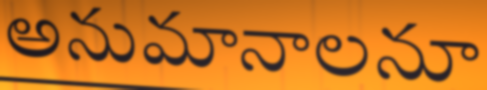
అనుమానాలనూ